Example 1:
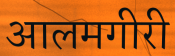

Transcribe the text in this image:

आलमगीरी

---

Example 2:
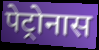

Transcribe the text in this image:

पेट्रोनास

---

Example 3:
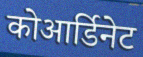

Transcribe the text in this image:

कोआर्डिनेट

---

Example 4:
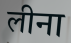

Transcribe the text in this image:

लीना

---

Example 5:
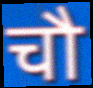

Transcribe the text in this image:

चौ